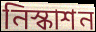
নিস্কাশন